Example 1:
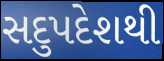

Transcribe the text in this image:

સદુપદેશથી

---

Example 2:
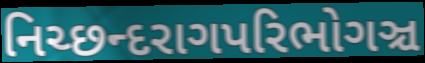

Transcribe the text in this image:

નિચ્છન્દરાગપરિભોગઞ્ચ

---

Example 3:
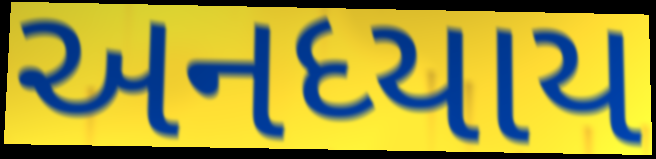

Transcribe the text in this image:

અનધ્યાય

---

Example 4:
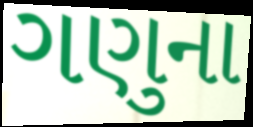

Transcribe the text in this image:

ગણુના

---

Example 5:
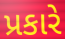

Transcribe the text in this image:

પ્રકારે